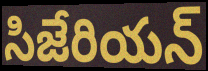
సిజేరియన్